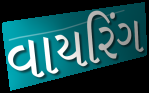
વાયરિંગ